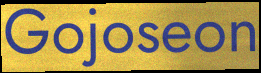
Gojoseon